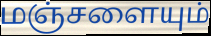
மஞ்சளையும்